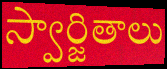
స్వార్జితాలు